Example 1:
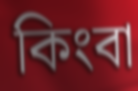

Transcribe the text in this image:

কিংবা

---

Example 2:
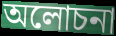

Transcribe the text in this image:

অলোচনা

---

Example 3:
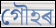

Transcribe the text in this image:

গৌহৰ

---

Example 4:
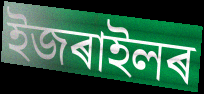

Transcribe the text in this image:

ইজৰাইলৰ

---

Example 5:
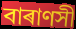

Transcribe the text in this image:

বাৰাণসী